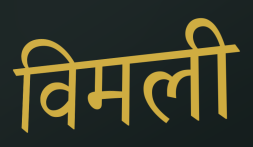
विमली